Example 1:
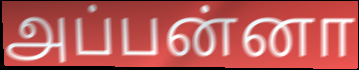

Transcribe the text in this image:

அப்பன்னா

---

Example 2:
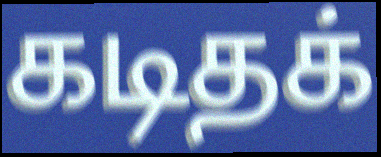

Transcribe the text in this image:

கடிதக்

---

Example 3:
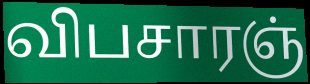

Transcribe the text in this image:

விபசாரஞ்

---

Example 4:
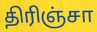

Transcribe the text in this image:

திரிஞ்சா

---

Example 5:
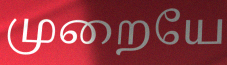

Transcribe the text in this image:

முறையே